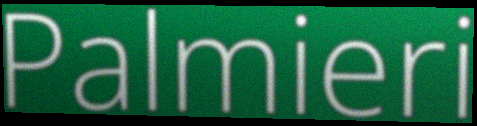
Palmieri